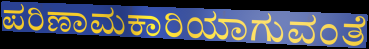
ಪರಿಣಾಮಕಾರಿಯಾಗುವಂತೆ